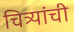
चित्र्यांची